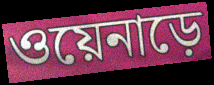
ওয়েনাড়ে